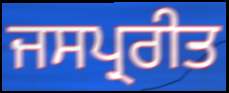
ਜਸਪ੍ਰਰੀਤ